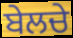
ਬੇਲਚੇ